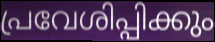
പ്രവേശിപ്പിക്കും